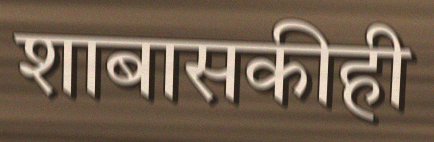
शाबासकीही